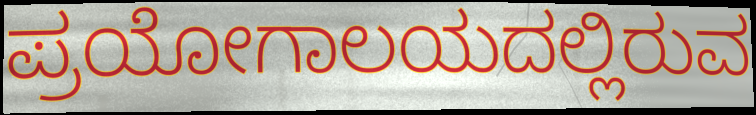
ಪ್ರಯೋಗಾಲಯದಲ್ಲಿರುವ